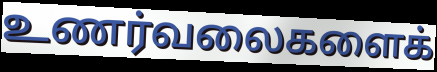
உணர்வலைகளைக்